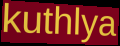
kuthlya